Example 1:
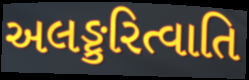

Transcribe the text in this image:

અલઙ્કરિત્વાતિ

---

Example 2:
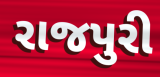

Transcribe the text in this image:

રાજપુરી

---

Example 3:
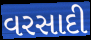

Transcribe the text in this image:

વરસાદી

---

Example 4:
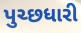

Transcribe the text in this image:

પુચ્છધારી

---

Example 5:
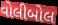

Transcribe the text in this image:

વોલીબોલ